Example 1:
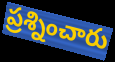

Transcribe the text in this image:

ప్రశ్నించారు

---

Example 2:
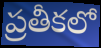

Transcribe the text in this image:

ప్రతీకలో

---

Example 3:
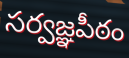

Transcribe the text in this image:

సర్వజ్ఞపీఠం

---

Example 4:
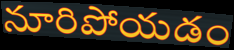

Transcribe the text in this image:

నూరిపోయడం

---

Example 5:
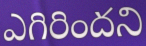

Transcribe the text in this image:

ఎగిరిందని